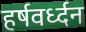
हर्षवर्ध्दन